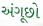
અંગૂછો